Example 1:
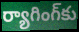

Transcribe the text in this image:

ర్యాగింగ్‌కు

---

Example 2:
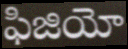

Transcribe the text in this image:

ఫిజియో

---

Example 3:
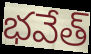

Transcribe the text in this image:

భవేత్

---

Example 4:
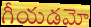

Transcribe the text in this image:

గీయడమో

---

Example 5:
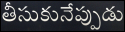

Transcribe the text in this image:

తీసుకునేప్పుడు